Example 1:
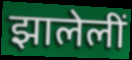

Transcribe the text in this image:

झालेलीं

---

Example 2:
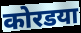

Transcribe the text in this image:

कोरडया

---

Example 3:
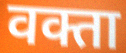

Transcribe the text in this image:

वक्ता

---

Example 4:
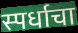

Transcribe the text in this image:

स्पर्धाचा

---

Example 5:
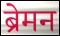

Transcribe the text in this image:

ब्रेमन